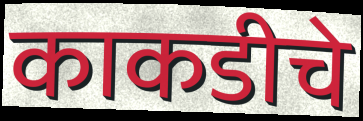
काकडीचे